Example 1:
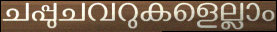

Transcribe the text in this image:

ചപ്പുചവറുകളെല്ലാം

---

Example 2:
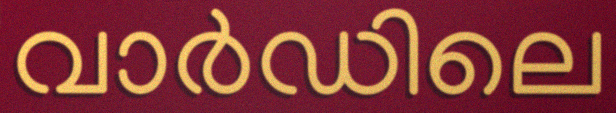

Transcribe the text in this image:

വാർഡിലെ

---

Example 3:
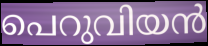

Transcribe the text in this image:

പെറുവിയൻ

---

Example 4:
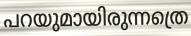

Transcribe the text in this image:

പറയുമായിരുന്നത്രെ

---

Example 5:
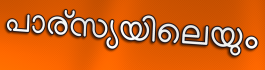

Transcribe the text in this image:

പാര്സ്യയിലെയും